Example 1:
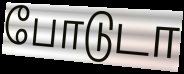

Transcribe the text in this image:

போடுடா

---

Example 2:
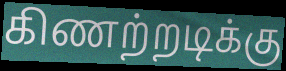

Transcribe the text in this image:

கிணற்றடிக்கு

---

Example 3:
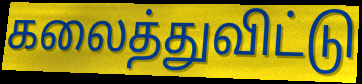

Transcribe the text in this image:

கலைத்துவிட்டு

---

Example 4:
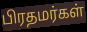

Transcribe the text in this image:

பிரதமர்கள்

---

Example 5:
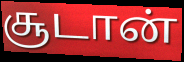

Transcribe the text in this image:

சூடான்